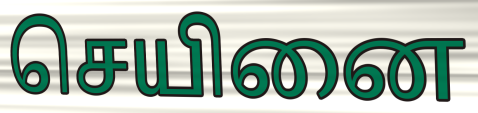
செயினை